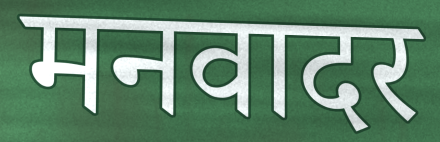
मनवादर